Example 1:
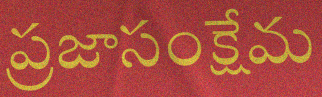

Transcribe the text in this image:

ప్రజాసంక్షేమ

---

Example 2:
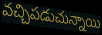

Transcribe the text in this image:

వచ్చిపడుచున్నాయి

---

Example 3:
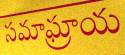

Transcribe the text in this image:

సమాఘ్రాయ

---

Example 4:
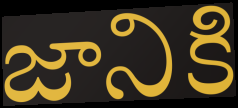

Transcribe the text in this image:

జానికి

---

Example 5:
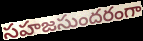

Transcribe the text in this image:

సహజసుందరంగా